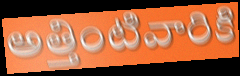
అత్తింటివారికి